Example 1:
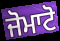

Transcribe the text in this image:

ਜੋਮਾਟੋ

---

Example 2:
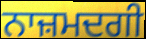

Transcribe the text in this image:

ਨਾਜ਼ਮਦਗੀ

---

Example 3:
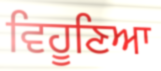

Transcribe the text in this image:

ਵਿਹੂਣਿਆ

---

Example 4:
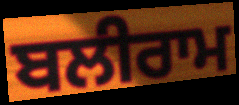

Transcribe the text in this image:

ਬਲੀਰਾਮ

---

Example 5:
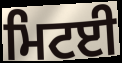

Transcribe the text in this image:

ਮਿਟਈ